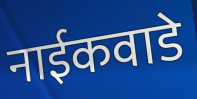
नाईकवाडे